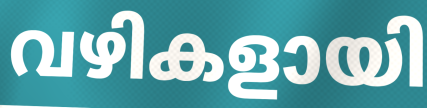
വഴികളായി